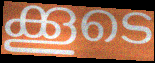
ക്കൂടെ